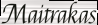
Maitrakas